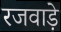
रजवाड़े